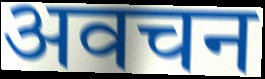
अवचन